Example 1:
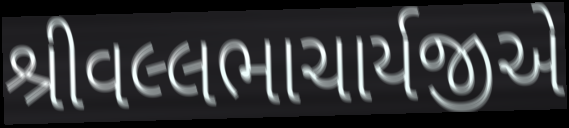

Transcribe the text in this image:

શ્રીવલ્લભાચાર્યજીએ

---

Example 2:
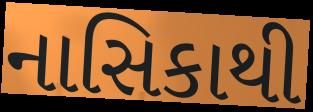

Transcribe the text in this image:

નાસિકાથી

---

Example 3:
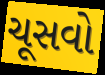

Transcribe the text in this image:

ચૂસવો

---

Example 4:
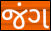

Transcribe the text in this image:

જંગ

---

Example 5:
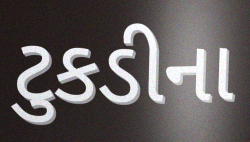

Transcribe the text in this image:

ટુકડીના